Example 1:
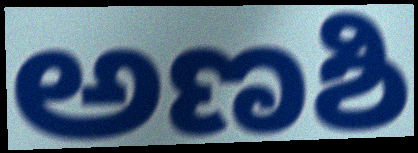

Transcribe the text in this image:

ಅಣಶಿ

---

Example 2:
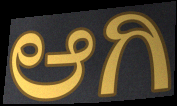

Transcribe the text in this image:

ಆಗಿ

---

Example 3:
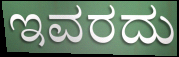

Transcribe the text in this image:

ಇವರದು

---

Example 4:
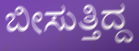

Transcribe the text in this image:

ಬೀಸುತ್ತಿದ್ದ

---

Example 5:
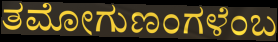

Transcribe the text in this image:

ತಮೋಗುಣಂಗಳೆಂಬ